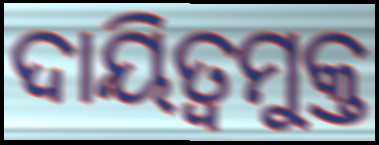
ଦାୟିତ୍ୱମୁକ୍ତ